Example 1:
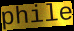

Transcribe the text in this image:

phile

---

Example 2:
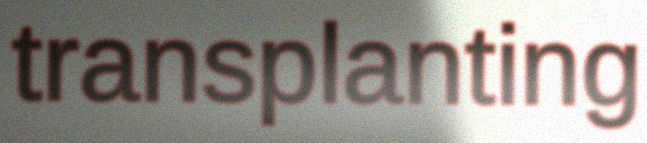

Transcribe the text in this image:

transplanting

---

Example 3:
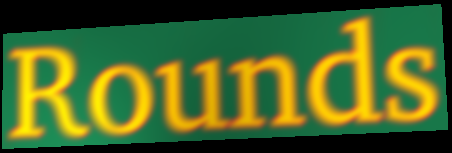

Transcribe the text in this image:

Rounds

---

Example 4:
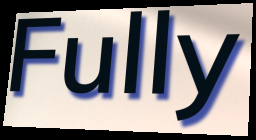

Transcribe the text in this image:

Fully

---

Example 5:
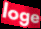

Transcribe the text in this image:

loge